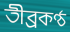
তীব্রকণ্ঠ